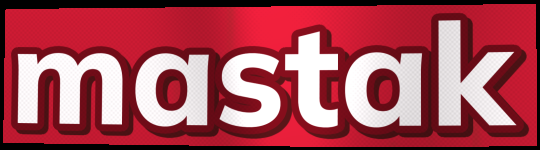
mastak